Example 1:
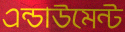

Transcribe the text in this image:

এন্ডাউমেন্ট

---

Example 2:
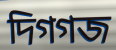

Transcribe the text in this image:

দিগগজ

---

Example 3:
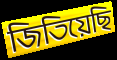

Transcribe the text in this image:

জিতিয়েছি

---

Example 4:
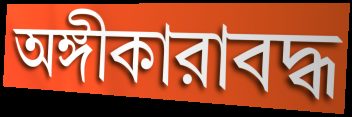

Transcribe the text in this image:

অঙ্গীকারাবদ্ধ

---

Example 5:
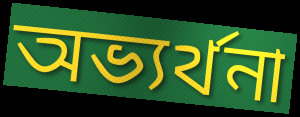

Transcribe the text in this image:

অভ্যর্থনা